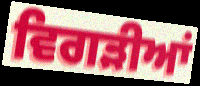
ਵਿਗੜੀਆਂ